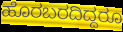
ಹೊರಬರದಿದ್ದರೂ